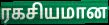
ரகசியமான